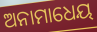
ଅନାମାଧେୟ